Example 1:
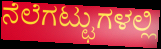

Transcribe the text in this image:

ನೆಲೆಗಟ್ಟುಗಳಲ್ಲಿ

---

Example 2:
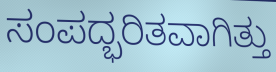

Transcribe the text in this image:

ಸಂಪದ್ಭರಿತವಾಗಿತ್ತು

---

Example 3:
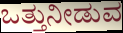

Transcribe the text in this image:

ಒತ್ತುನೀಡುವ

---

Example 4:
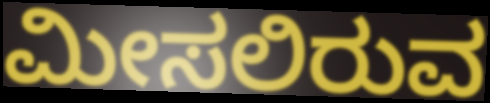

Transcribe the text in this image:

ಮೀಸಲಿರುವ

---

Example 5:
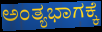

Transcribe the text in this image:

ಅಂತ್ಯಭಾಗಕ್ಕೆ